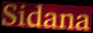
Sidana